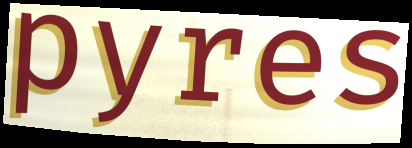
pyres